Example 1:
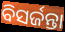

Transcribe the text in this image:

ବିସର୍ଜନ୍ତା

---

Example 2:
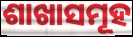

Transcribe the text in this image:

ଶାଖାସମୂହ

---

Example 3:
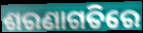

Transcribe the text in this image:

ଶରଣାଗତିରେ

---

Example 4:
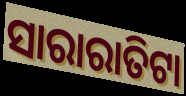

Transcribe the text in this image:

ସାରାରାତିଟା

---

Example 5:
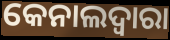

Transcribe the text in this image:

କେନାଲଦ୍ଵାରା